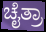
ಚೈತ್ರಾ